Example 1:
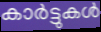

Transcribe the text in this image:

കാർട്ടുകൾ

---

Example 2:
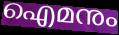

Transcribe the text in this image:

ഐമനും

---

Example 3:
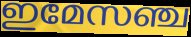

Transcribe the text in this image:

ഇമേസഞ്ച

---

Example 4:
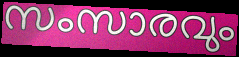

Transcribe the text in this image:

സംസാരവും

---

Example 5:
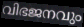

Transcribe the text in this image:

വിഭജനവും